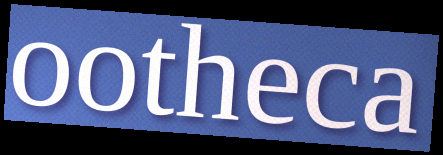
ootheca